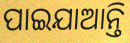
ପାଇଯାଆନ୍ତି